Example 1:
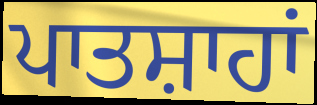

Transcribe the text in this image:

ਪਾਤਸ਼ਾਹਾਂ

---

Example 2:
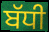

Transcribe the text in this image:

ਬੱਧੀ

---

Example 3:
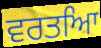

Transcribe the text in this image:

ਵਰਤਆਿ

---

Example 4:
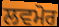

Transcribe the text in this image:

ਲਵਮੋਰ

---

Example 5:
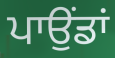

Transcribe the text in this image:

ਪਾਉਂਡਾਂ